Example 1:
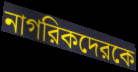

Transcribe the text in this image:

নাগরিকদেরকে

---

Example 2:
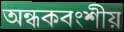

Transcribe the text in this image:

অন্ধকবংশীয়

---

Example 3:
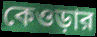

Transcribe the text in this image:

কেওড়ার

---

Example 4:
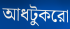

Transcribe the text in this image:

আধটুকরো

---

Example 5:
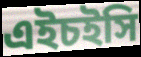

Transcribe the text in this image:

এইচইসি